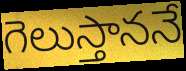
గెలుస్తాననే